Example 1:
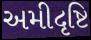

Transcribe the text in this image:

અમીદૃષ્ટિ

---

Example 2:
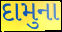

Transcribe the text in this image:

દામુના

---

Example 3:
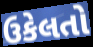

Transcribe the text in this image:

ઉકેલતો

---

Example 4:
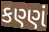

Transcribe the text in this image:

કણ્ણં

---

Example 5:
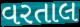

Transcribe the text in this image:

વરતાલ